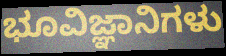
ಭೂವಿಜ್ಞಾನಿಗಳು